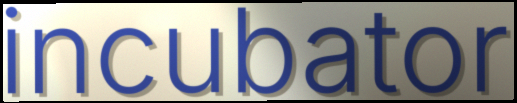
incubator